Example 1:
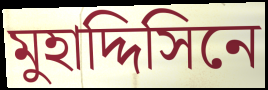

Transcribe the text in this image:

মুহাদ্দিসিনে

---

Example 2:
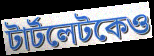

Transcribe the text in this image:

টার্টলেটকেও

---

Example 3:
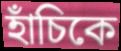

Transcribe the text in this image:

হাঁচিকে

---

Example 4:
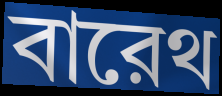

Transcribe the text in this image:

বারেথ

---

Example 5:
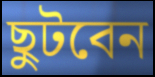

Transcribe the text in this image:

ছুটবেন